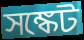
সঙ্কেট